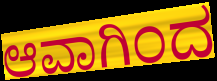
ಆವಾಗಿಂದ